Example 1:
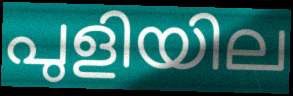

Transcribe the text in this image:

പുളിയില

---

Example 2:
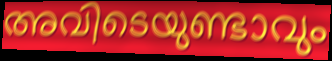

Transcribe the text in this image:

അവിടെയുണ്ടാവും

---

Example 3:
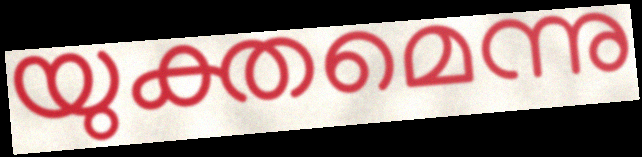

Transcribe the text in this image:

യുക്തമെന്നു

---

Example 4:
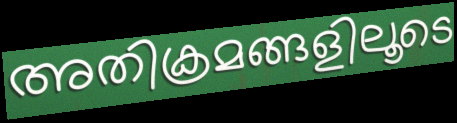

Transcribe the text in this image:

അതിക്രമങ്ങളിലൂടെ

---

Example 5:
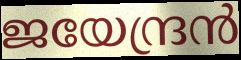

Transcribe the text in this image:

ജയേന്ദ്രൻ